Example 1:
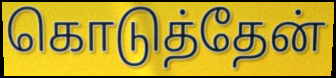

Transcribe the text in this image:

கொடுத்தேன்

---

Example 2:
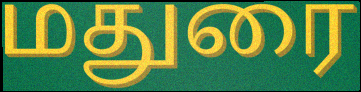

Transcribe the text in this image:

மதுரை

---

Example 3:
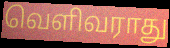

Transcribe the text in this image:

வெளிவராது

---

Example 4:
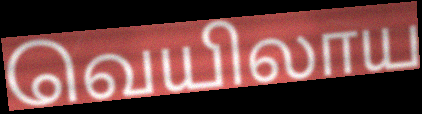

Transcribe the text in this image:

வெயிலாய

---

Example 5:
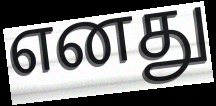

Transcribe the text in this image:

எனது